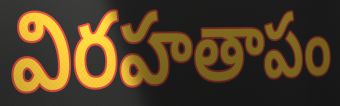
విరహతాపం